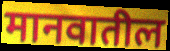
मानवातील